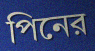
পিনের